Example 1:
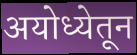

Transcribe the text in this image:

अयोध्येतून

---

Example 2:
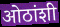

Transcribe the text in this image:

ओठांशी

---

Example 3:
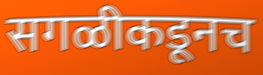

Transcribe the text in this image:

सगळीकडूनच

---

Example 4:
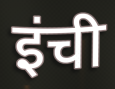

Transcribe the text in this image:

इंची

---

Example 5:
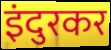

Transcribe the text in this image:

इंदुरकर